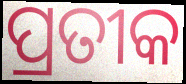
ପ୍ରତୀକ